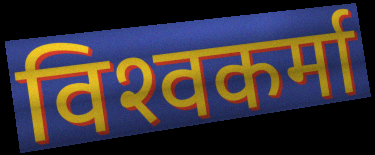
विश्वकर्मा